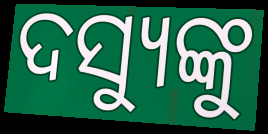
ଦସ୍ୟୁଙ୍କୁ